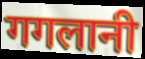
गगलानी